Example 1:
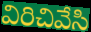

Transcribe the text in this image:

విరిచివేసి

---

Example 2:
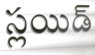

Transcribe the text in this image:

స్లయిడ్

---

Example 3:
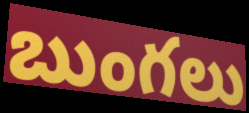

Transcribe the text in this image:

బుంగలు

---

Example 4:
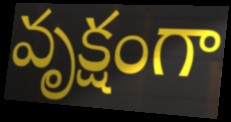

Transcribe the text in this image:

వృక్షంగా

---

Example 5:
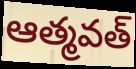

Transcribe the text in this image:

ఆత్మవత్